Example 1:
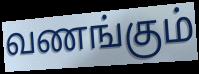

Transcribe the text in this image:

வணங்கும்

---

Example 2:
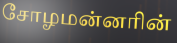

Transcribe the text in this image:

சோழமன்னரின்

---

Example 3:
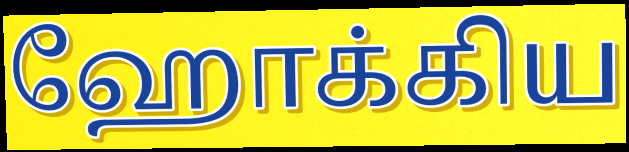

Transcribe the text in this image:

ஹோக்கிய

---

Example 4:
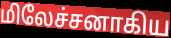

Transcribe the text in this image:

மிலேச்சனாகிய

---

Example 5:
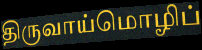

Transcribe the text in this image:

திருவாய்மொழிப்